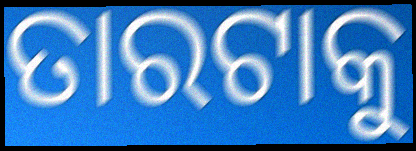
ତାରଟାକୁ